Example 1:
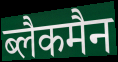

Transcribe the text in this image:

ब्लैकमैन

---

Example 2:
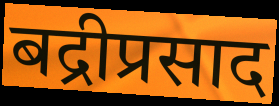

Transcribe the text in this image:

बद्रीप्रसाद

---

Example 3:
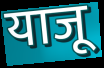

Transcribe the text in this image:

याजू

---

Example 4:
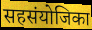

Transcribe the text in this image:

सहसंयोजिका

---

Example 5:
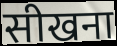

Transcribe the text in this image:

सीखना